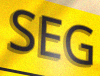
SEG